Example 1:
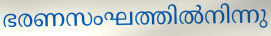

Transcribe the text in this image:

ഭരണസംഘത്തിൽനിന്നു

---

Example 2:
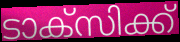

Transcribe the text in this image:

ടാക്സിക്ക്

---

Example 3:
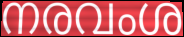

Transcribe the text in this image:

നരവംശ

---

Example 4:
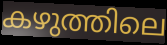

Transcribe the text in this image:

കഴുത്തിലെ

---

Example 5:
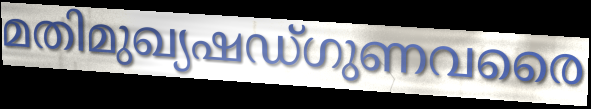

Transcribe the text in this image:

മതിമുഖ്യഷഡ്ഗുണവരൈ